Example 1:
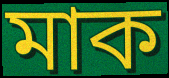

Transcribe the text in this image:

মাক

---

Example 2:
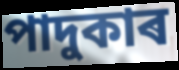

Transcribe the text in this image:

পাদুকাৰ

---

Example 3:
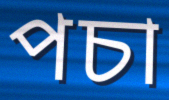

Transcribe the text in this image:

পচা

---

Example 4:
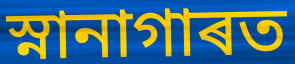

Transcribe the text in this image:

স্নানাগাৰত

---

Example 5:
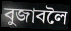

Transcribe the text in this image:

বুজাবলৈ